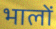
भालों